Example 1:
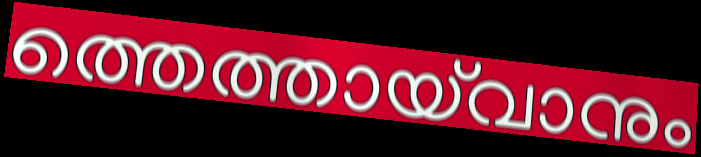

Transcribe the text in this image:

ത്തെത്തായ്‌വാനും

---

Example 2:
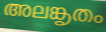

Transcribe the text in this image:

അലങ്കൃതം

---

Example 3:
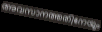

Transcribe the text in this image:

അവസാനത്തതിനേയും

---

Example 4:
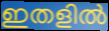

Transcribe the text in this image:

ഇതളിൽ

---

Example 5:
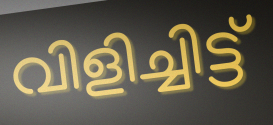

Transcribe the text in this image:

വിളിച്ചിട്ട്